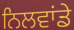
ਨਿਲਵਾਂਡੇ